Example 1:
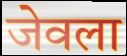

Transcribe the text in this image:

जेवला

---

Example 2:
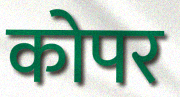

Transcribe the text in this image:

कोपर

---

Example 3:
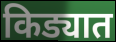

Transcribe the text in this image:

किड्यात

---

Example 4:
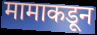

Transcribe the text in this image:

मामाकडून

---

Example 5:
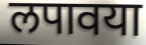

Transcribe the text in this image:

लपावया